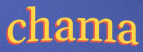
chama